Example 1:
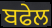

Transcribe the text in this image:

ਬਫੇਲ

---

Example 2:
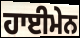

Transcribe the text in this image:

ਹਾਈਮੇਨ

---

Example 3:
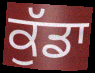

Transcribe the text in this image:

ਕੁੱਡਾ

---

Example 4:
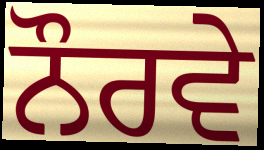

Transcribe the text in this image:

ਨੌਰਵੇ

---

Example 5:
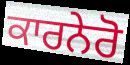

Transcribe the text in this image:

ਕਾਰਨੇਰੋ